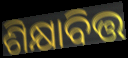
ଶିକ୍ଷାବିତ୍ତ